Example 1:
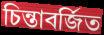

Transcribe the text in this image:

চিন্তাবর্জিত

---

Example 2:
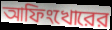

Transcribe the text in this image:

আফিংখোরের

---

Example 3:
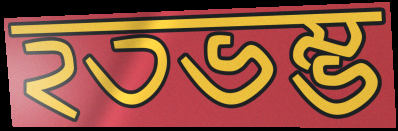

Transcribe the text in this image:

হতভম্ভ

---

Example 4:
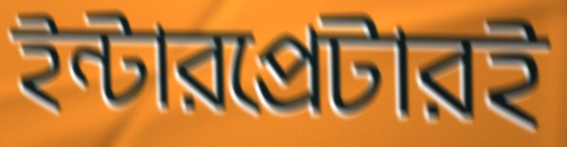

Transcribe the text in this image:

ইন্টারপ্রেটারই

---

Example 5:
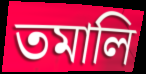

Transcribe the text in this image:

তমালি